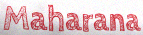
Maharana